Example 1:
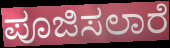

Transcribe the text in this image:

ಪೂಜಿಸಲಾರೆ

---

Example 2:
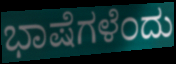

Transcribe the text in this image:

ಭಾಷೆಗಳೆಂದು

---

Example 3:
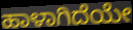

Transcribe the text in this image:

ಹಾಳಾಗಿದೆಯೇ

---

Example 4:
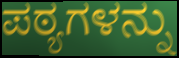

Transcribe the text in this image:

ಪಠ್ಯಗಳನ್ನು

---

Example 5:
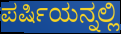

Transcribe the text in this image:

ಪರ್ಷಿಯನ್ನಲ್ಲಿ